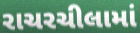
રાચરચીલામાં